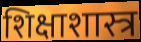
शिक्षाशास्त्र